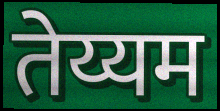
तेय्यम